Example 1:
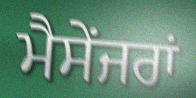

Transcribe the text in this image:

ਮੈਸੇਂਜਰਾਂ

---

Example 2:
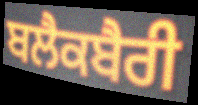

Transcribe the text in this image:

ਬਲੈਕਬੈਰੀ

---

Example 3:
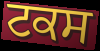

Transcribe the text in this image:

ਟਕਸ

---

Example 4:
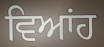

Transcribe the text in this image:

ਵਿਆਂਹ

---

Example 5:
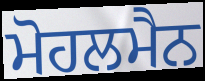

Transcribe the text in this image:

ਮੋਹਲਮੈਨ